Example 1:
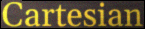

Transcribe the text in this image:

Cartesian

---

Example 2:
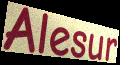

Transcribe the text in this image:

Alesur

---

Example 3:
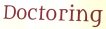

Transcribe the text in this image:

Doctoring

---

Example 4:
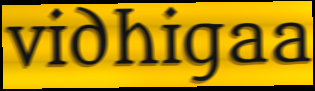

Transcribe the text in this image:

vidhigaa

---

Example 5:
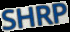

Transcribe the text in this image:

SHRP